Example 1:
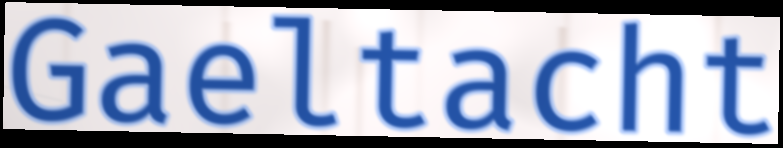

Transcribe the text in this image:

Gaeltacht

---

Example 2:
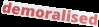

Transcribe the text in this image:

demoralised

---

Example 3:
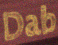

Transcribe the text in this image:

Dab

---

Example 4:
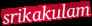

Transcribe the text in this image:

srikakulam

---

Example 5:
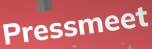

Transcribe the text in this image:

Pressmeet